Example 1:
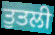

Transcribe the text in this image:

ਤੁਤਲੀ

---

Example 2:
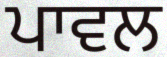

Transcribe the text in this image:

ਪਾਵਲ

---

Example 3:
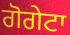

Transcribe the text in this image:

ਗੋਗੇਟਾ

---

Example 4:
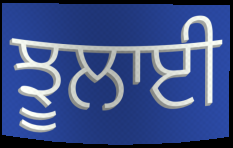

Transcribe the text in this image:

ਝੂਲਾਈ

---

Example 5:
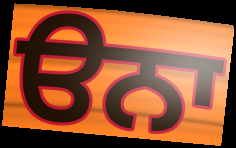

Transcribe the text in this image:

ੳਨਾ